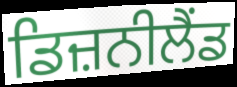
ਡਿਜ਼ਨੀਲੈਂਡ